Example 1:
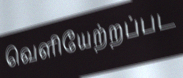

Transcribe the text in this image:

வெளியேற்றப்பட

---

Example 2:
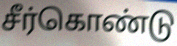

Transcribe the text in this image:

சீர்கொண்டு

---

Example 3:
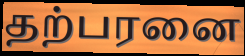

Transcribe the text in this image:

தற்பரனை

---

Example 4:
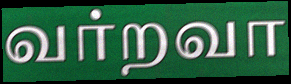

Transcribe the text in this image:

வர்றவா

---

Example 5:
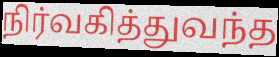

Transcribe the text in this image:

நிர்வகித்துவந்த